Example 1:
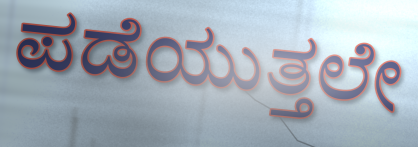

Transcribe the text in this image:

ಪಡೆಯುತ್ತಲೇ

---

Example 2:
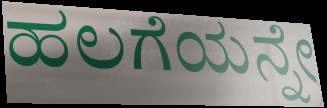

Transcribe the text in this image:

ಹಲಗೆಯನ್ನೇ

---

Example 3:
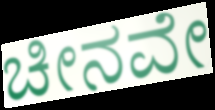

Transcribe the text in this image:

ಚೀನವೇ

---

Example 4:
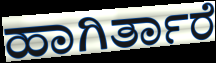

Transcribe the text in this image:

ಹಾಗಿರ್ತಾರೆ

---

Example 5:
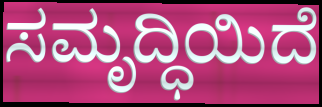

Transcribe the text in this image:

ಸಮೃದ್ಧಿಯಿದೆ